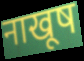
नाखूष